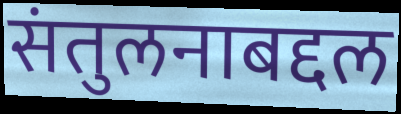
संतुलनाबद्दल